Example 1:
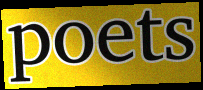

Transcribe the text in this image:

poets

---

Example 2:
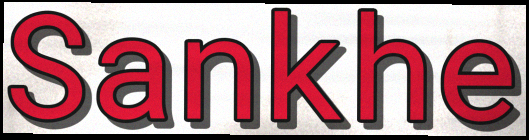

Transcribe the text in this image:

Sankhe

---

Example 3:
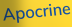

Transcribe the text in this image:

Apocrine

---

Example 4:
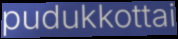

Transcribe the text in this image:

pudukkottai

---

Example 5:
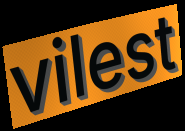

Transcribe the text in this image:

vilest